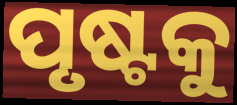
ପୃଷ୍ଟକୁ